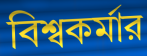
বিশ্বকর্মার